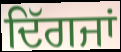
ਦਿੱਗਜਾਂ